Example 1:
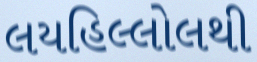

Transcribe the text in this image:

લયહિલ્લોલથી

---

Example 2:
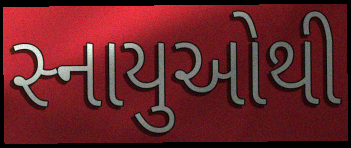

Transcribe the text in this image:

સ્નાયુઓથી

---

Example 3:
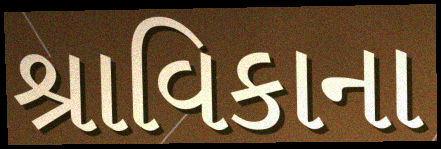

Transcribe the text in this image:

શ્રાવિકાના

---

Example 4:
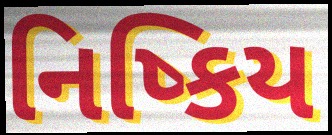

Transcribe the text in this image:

નિષ્કિય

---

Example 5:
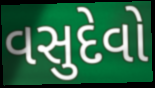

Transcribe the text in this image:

વસુદેવો